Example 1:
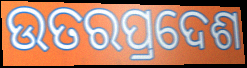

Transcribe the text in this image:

ଉତରପ୍ରଦେଶ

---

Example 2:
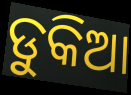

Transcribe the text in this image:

ଡୁକିଆ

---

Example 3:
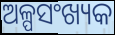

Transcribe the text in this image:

ଅଳ୍ପସଂଖ୍ୟକ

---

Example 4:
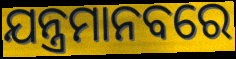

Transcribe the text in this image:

ଯନ୍ତ୍ରମାନବରେ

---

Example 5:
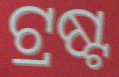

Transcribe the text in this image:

ଟ୍ରଷ୍ଟ